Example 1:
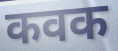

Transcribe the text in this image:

कवक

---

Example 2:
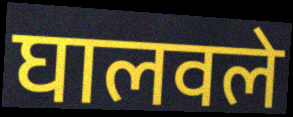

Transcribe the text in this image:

घालवले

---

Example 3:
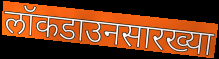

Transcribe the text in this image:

लॉकडाउनसारख्या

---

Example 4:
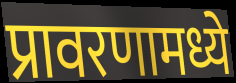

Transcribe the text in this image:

प्रावरणामध्ये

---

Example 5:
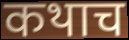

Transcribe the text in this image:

कथाच